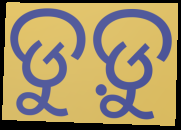
ଡୁଡ଼ୁ